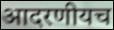
आदरणीयच